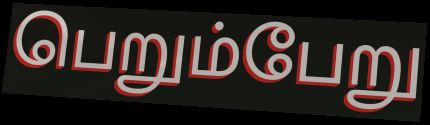
பெறும்பேறு